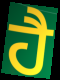
ਹੈ